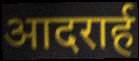
आदरार्ह